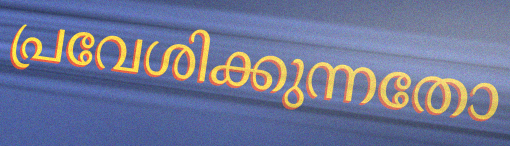
പ്രവേശിക്കുന്നതോ